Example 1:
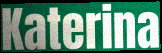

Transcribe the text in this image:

Katerina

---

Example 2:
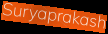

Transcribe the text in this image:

Suryaprakash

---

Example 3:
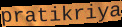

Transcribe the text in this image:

pratikriya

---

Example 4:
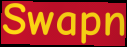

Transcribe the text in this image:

Swapn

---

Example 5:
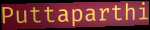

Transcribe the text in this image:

Puttaparthi